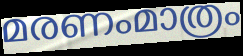
മരണംമാത്രം